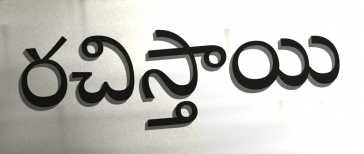
రచిస్తాయి